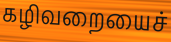
கழிவறையைச்